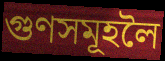
গুণসমূহলৈ